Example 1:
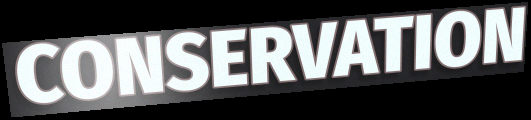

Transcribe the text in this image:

CONSERVATION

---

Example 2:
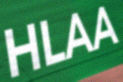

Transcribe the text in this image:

HLAA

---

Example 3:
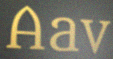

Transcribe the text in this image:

Aav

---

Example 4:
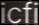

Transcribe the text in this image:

icfi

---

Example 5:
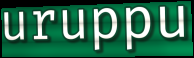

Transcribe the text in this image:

uruppu